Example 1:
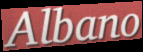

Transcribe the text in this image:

Albano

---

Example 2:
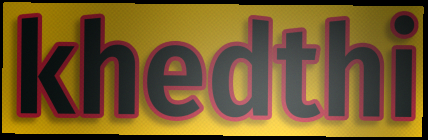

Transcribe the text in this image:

khedthi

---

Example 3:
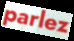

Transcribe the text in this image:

parlez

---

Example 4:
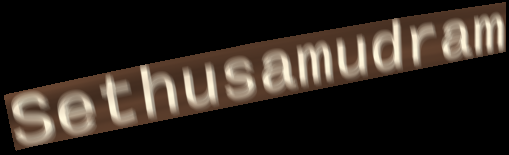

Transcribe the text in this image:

Sethusamudram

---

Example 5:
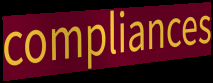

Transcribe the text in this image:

compliances